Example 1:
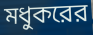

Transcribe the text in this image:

মধুকরের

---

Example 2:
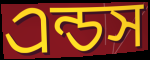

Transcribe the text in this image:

এন্ডস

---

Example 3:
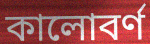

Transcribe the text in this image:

কালোবর্ণ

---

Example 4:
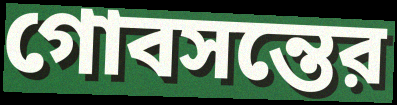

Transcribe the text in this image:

গোবসন্তের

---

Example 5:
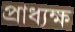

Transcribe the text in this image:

প্রাধ্যক্ষ